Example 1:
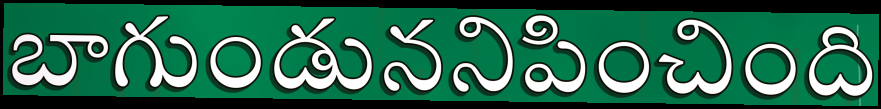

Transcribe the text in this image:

బాగుండుననిపించింది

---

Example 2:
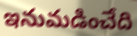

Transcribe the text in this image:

ఇనుమడించేది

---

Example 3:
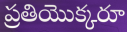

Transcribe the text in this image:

ప్రతియొక్కరూ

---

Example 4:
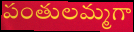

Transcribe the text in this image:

పంతులమ్మగా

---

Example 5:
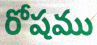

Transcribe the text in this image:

రోషము